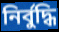
নির্বুদ্ধি